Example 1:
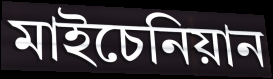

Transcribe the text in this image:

মাইচেনিয়ান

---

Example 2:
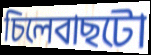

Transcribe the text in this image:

চিলেবাছটো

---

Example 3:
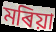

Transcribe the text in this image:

মৰিয়া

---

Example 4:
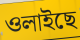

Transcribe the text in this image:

ওলাইছে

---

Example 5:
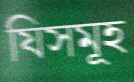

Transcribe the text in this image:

যিসমূহ